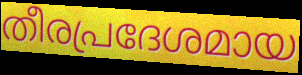
തീരപ്രദേശമായ